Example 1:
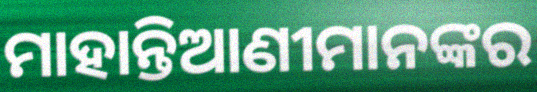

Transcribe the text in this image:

ମାହାନ୍ତିଆଣୀମାନଙ୍କର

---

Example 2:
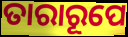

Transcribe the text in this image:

ତାରାରୂପେ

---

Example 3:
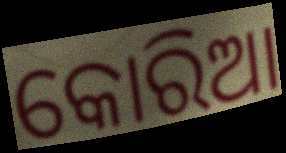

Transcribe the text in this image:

କୋରିଆ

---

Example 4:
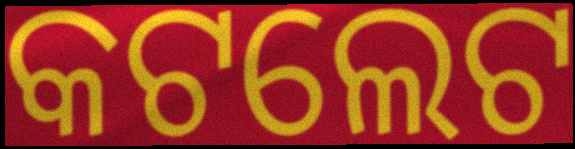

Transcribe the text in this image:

କଟଲେଟ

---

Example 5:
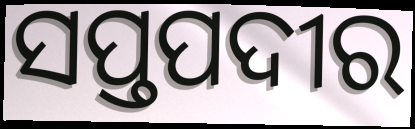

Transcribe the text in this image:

ସପ୍ତପଦୀର